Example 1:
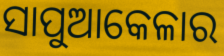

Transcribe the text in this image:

ସାପୁଆକେଳାର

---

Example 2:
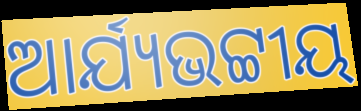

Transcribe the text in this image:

ଆର୍ଯ୍ୟଭଟ୍ଟୀୟ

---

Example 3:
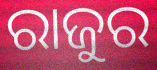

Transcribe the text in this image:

ରାଜୁର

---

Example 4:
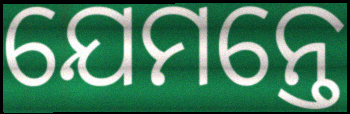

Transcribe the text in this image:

ଯେମନ୍ତେ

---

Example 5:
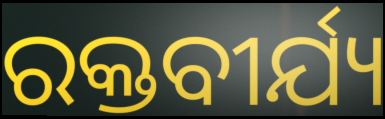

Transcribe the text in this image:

ରକ୍ତବୀର୍ଯ୍ୟ